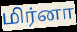
மிர்னா